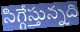
సిగ్గేస్తున్నది